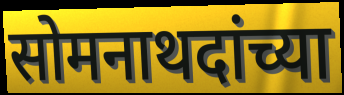
सोमनाथदांच्या